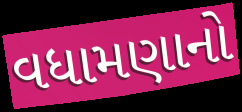
વધામણાનો